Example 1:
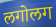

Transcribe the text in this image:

लगोलग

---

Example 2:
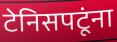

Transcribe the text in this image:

टेनिसपटूंना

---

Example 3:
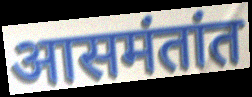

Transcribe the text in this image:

आसमंतांत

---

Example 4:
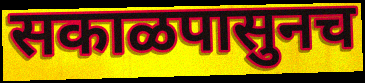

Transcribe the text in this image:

सकाळपासुनच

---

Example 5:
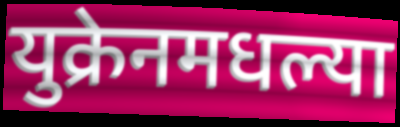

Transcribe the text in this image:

युक्रेनमधल्या